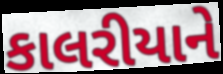
કાલરીયાને